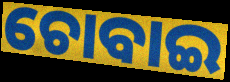
ଚୋବାଇ